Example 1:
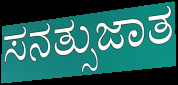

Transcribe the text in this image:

ಸನತ್ಸುಜಾತ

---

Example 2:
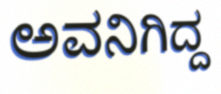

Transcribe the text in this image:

ಅವನಿಗಿದ್ದ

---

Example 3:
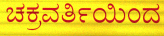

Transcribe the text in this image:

ಚಕ್ರವರ್ತಿಯಿಂದ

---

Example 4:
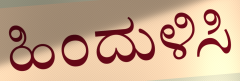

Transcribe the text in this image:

ಹಿಂದುಳಿಸಿ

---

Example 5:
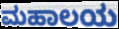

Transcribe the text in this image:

ಮಹಾಲಯ